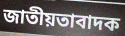
জাতীয়তাবাদক